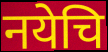
नयेचि